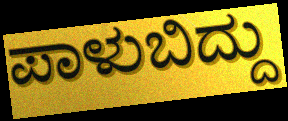
ಪಾಳುಬಿದ್ದು